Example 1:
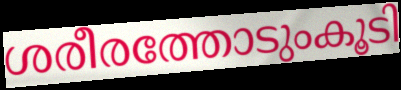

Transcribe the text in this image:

ശരീരത്തോടുംകൂടി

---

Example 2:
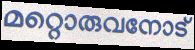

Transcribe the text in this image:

മറ്റൊരുവനോട്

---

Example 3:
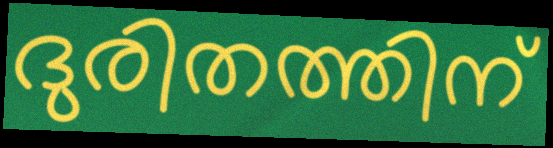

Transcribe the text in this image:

ദുരിതത്തിന്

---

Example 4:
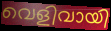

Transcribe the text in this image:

വെളിവായി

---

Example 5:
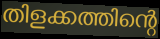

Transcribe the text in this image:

തിളക്കത്തിന്റെ